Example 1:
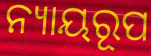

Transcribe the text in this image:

ନ୍ୟାୟରୂପ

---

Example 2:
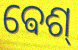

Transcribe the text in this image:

ଵେଶ୍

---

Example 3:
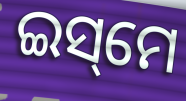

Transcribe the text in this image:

ଇସ୍‌ମେ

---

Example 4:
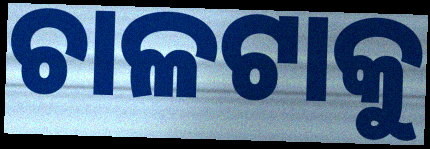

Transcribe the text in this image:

ଚାଳଟାକୁ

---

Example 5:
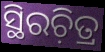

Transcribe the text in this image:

ସ୍ଥିରଚ଼ିତ୍ର